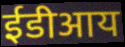
ईडीआय